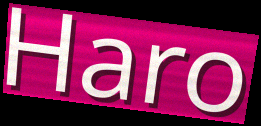
Haro